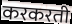
करकरती